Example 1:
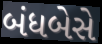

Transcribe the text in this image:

બંધબેસે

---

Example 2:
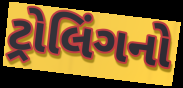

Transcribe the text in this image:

ટ્રોલિંગનો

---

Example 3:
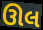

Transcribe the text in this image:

ઊલ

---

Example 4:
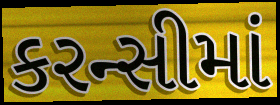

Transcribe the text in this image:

કરન્સીમાં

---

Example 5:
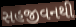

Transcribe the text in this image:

સહજીવનથી